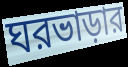
ঘরভাড়ার